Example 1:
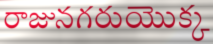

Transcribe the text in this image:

రాజునగరుయొక్క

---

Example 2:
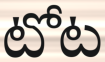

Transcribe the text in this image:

టోట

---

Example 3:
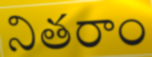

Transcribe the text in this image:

నితరాం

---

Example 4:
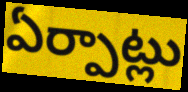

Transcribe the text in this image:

ఏర్పాట్లు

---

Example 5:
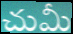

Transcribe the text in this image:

చుమీ